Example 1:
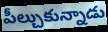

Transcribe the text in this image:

పీల్చుకున్నాడు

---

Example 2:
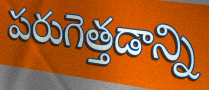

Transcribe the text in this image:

పరుగెత్తడాన్ని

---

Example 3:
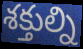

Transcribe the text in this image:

శక్తుల్ని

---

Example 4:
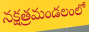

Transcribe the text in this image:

నక్షత్రమండలంలో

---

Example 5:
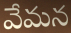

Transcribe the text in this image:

వేమన